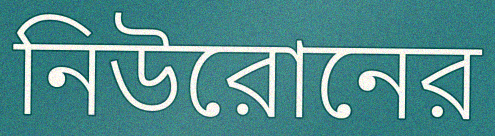
নিউরোনের